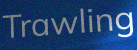
Trawling